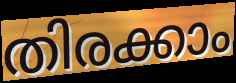
തിരക്കാം